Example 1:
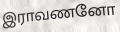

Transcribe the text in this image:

இராவணனோ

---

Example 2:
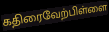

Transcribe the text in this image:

கதிரைவேற்பிள்ளை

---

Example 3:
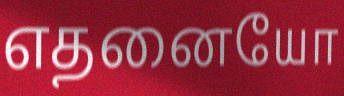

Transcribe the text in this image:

எதனையோ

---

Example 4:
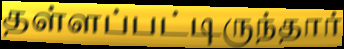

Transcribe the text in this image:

தள்ளப்பட்டிருந்தார்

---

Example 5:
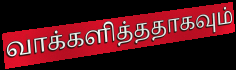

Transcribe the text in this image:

வாக்களித்ததாகவும்